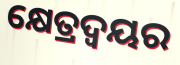
କ୍ଷେତ୍ରଦ୍ୱୟର